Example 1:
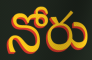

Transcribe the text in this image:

నోరు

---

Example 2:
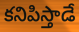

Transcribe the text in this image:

కనిపిస్తాడే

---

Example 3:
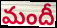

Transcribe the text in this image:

మందీ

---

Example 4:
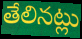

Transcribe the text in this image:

తేలినట్లు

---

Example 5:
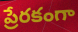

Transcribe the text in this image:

ప్రేరకంగా